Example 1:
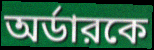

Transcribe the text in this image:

অর্ডারকে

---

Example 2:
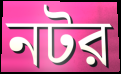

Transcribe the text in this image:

নটর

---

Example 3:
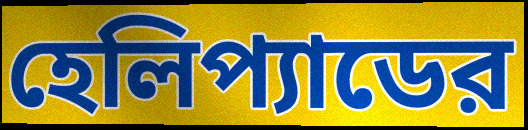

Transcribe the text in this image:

হেলিপ্যাডের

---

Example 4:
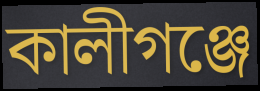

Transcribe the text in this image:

কালীগঞ্জে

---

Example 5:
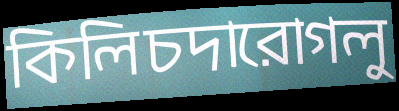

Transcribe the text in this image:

কিলিচদারোগলু